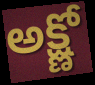
అక్ష్ణో